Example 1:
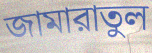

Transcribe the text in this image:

জামারাতুল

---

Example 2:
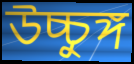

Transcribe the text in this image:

উচ্চুঙ্গ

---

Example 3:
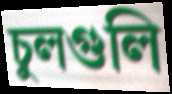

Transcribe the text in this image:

চুলগুলি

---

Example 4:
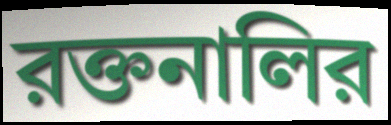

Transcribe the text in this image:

রক্তনালির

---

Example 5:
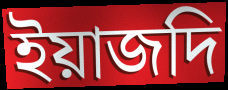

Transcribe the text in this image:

ইয়াজদি